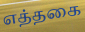
எத்தகை